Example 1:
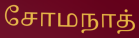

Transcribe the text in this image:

சோமநாத்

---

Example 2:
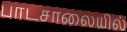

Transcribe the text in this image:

பாடசாலையில்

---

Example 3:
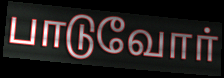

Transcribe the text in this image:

பாடுவோர்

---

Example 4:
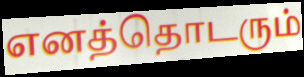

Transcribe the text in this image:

எனத்தொடரும்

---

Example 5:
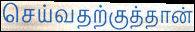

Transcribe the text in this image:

செய்வதற்குத்தான்